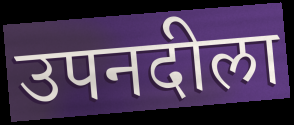
उपनदीला